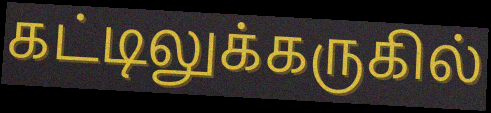
கட்டிலுக்கருகில்